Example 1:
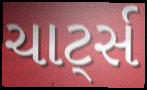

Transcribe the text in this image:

ચાર્ટ્સ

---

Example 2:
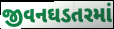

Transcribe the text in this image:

જીવનઘડતરમાં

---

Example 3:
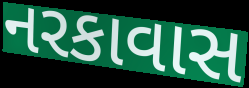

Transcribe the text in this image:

નરકાવાસ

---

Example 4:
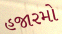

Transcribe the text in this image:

હજારમો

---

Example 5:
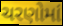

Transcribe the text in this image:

ચરણોમાં